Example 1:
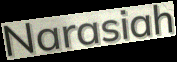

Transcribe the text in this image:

Narasiah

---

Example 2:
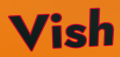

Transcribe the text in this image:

Vish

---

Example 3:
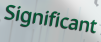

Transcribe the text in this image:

Significant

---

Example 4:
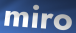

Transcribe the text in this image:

miro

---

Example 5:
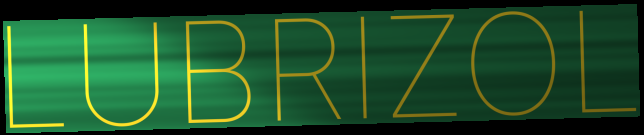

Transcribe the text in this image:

LUBRIZOL